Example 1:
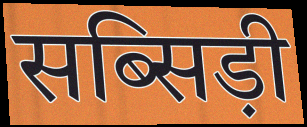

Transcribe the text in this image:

सब्सिड़ी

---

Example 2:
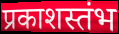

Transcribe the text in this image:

प्रकाशस्तंभ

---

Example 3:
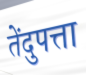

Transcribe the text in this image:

तेंदुपत्ता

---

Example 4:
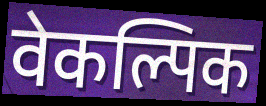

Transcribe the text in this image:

वेकल्पिक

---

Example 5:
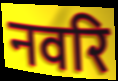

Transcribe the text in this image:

नवरि